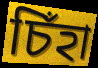
চিঁহা